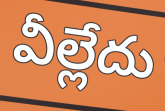
వీల్లేదు